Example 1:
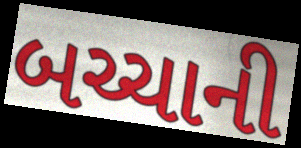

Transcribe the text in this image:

બચ્ચાની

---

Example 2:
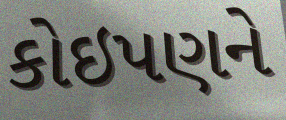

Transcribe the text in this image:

કોઇપણને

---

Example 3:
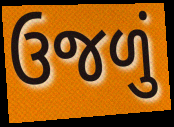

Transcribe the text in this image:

ઉજળું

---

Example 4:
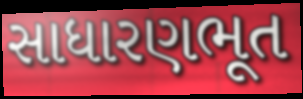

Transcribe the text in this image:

સાધારણભૂત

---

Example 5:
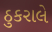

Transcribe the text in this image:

ઠુકરાલે